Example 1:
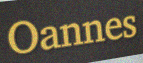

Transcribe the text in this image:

Oannes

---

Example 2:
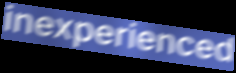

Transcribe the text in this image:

inexperienced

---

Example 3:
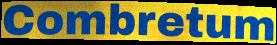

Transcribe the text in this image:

Combretum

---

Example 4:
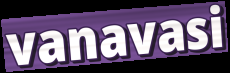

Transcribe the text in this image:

vanavasi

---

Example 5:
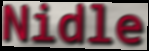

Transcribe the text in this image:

Nidle